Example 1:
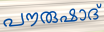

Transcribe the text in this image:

പൗരുഷാദ്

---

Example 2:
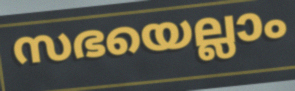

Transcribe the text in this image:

സഭയെല്ലാം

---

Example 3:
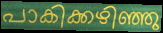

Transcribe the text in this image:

പാകിക്കഴിഞ്ഞു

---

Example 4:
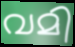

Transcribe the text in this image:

വമി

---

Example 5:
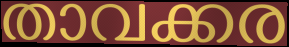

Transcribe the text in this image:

താവക്കര